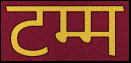
टम्म